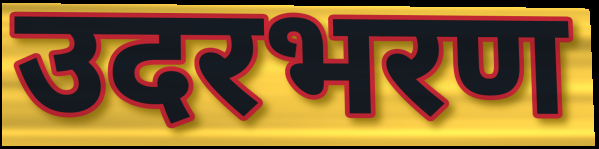
उदरभरण